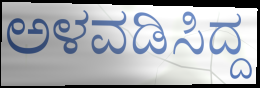
ಅಳವಡಿಸಿದ್ದ